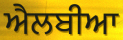
ਐਲਬੀਆ